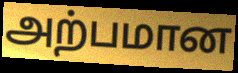
அற்பமான